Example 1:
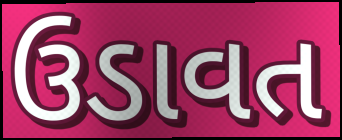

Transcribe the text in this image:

ઉડાવત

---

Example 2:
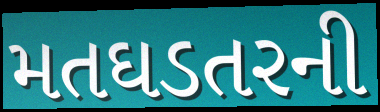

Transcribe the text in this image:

મતઘડતરની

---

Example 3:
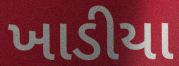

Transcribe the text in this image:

ખાડીયા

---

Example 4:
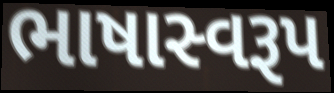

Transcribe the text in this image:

ભાષાસ્વરૂપ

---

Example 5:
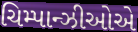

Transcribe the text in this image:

ચિમ્પાન્ઝીઓએ